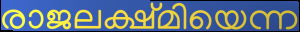
രാജലക്ഷ്മിയെന്ന